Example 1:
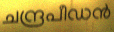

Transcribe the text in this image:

ചന്ദ്രപീഡൻ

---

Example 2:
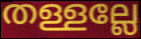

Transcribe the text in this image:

തള്ളല്ലേ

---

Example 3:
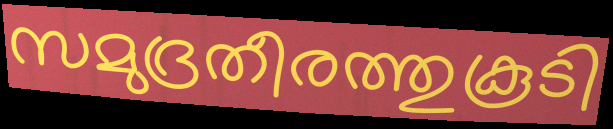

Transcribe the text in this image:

സമുദ്രതീരത്തുകൂടി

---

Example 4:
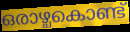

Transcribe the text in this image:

ഒരാഴ്ചകൊണ്ട്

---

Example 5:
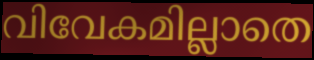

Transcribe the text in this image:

വിവേകമില്ലാതെ